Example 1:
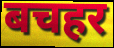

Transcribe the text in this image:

बचहर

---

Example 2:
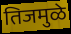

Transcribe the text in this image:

तिजमुळे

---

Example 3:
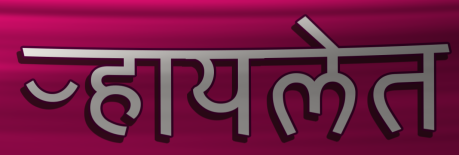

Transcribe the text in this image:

ऱ्हायलेत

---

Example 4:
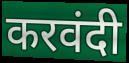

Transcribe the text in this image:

करवंदी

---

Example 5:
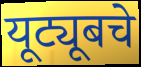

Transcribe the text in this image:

यूट्यूबचे